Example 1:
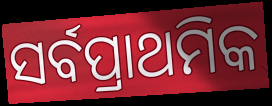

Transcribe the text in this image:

ସର୍ବପ୍ରାଥମିକ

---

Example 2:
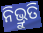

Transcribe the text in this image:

ନିଭ୍ରୁତି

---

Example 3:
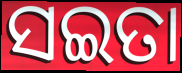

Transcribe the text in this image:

ସଇତା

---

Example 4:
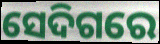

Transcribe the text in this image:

ସେଦିଗରେ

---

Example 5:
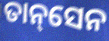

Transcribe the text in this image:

ତାନ୍‌ସେନ